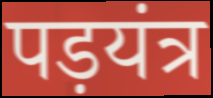
पड़यंत्र